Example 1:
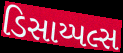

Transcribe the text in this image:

ડિસાય્પલ્સ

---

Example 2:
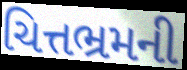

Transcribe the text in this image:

ચિત્તભ્રમની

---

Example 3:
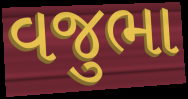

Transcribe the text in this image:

વજુભા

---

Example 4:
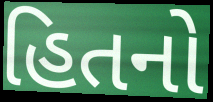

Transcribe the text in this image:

હિતનો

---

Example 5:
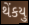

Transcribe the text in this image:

થેંકયુ